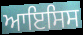
ਆਇਸਿਸ